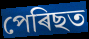
পেৰিছত